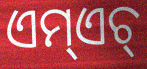
ଏମ୍ଏଚ୍